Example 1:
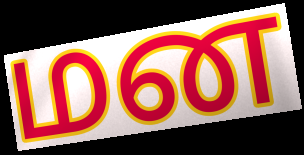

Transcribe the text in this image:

மன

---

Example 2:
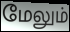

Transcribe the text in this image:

மேலும்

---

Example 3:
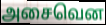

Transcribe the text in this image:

அசைவென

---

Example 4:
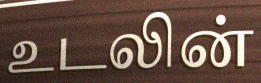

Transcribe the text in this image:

உடலின்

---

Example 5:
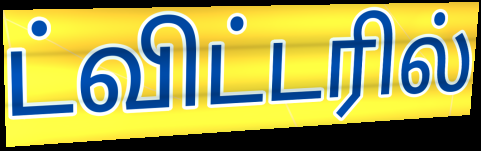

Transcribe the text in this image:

ட்விட்டரில்